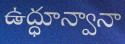
ఉద్ధూన్వానా